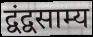
द्वंद्वसाम्य